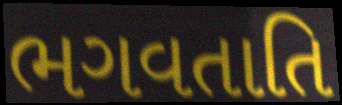
ભગવતાતિ